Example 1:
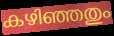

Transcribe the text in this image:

കഴിഞ്ഞതും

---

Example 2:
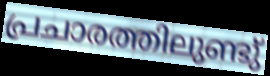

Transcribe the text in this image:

പ്രചാരത്തിലുണ്ടു്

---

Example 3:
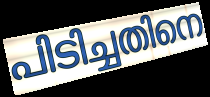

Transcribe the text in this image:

പിടിച്ചതിനെ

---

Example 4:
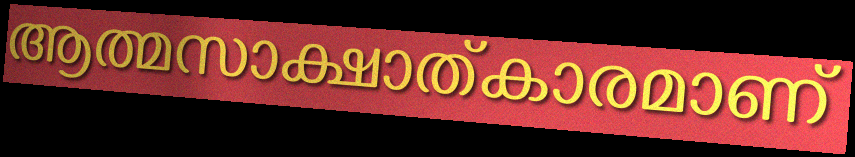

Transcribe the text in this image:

ആത്മസാക്ഷാത്കാരമാണ്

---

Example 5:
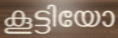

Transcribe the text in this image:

കൂട്ടിയോ